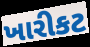
ખારીકટ